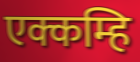
एक्कम्हि